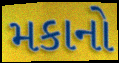
મકાનો